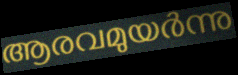
ആരവമുയർന്നു